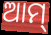
ଆମ୍